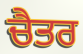
ਚੈਤਰ